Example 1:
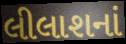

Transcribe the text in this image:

લીલાશનાં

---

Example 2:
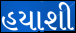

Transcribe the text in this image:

હયાશી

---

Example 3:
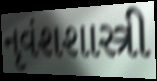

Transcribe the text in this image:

નૃવંશશાસ્ત્રી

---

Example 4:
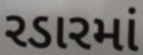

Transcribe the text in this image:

રડારમાં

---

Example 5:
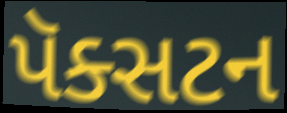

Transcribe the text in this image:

પૅક્સટન